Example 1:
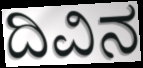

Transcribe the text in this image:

ದಿವಿನ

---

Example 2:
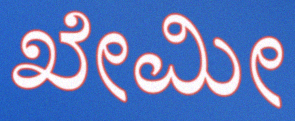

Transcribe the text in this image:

ಖೇಮೀ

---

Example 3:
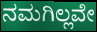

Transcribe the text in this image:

ನಮಗಿಲ್ಲವೇ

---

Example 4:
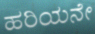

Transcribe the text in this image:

ಹರಿಯನೇ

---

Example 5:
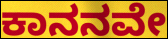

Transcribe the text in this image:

ಕಾನನವೇ